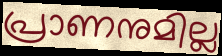
പ്രാണനുമില്ല